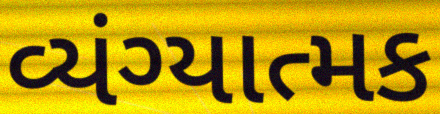
વ્યંગ્યાત્મક